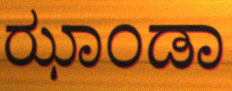
ಝಾಂಡಾ